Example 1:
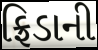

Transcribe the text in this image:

ફ્રિડાની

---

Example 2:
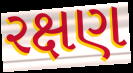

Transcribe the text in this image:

રક્ષણ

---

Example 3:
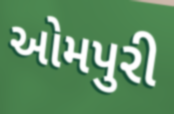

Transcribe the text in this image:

ઓમપુરી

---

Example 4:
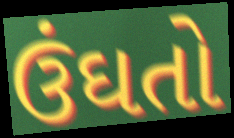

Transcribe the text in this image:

ઉંઘતો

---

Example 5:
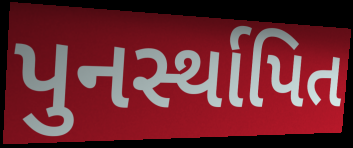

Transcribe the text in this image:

પુનર્સ્થાપિત